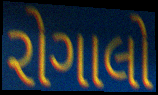
રોગાલો